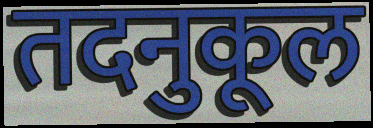
तदनुकूल